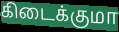
கிடைக்குமா